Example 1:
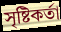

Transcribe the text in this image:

সৃষ্টিকৰ্তা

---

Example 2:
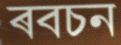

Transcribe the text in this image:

ৰবচন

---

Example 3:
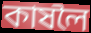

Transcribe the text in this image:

কাষলৈ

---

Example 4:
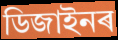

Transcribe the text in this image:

ডিজাইনৰ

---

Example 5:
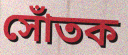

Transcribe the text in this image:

সোঁতক